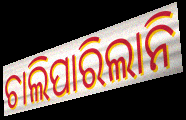
ଚାଲିପାରିଲାନି